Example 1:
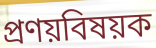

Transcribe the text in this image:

প্রণয়বিষয়ক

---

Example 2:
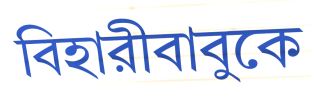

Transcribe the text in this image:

বিহারীবাবুকে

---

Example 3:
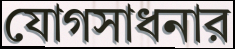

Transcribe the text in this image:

যোগসাধনার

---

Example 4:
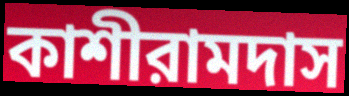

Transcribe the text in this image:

কাশীরামদাস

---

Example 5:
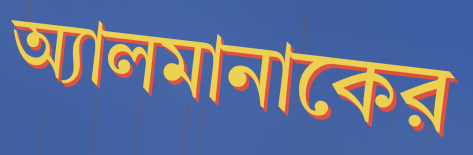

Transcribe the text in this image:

অ্যালমানাকের